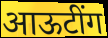
आऊटींग